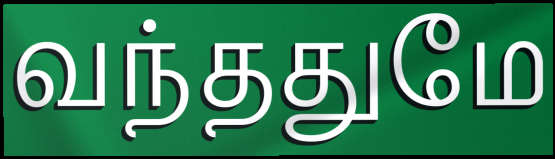
வந்ததுமே